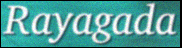
Rayagada